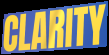
CLARITY